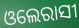
ଓଲେରାସୀ